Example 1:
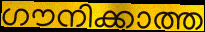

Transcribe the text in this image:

ഗൗനിക്കാത്ത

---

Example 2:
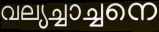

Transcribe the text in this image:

വല്യച്ചാച്ചനെ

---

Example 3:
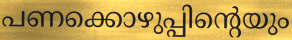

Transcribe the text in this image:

പണക്കൊഴുപ്പിന്റെയും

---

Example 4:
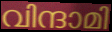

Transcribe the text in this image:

വിന്ദാമി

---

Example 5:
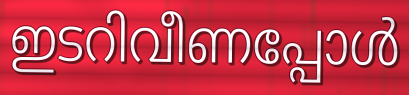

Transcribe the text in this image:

ഇടറിവീണപ്പോൾ